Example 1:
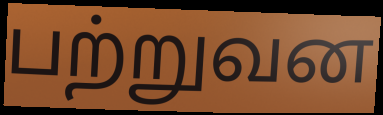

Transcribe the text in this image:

பற்றுவன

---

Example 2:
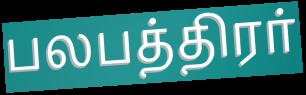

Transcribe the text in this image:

பலபத்திரர்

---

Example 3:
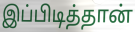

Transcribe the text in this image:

இப்பிடித்தான்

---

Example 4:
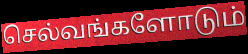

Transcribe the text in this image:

செல்வங்களோடும்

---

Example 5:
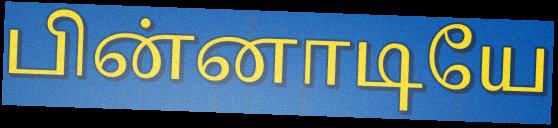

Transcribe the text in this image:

பின்னாடியே